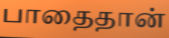
பாதைதான்